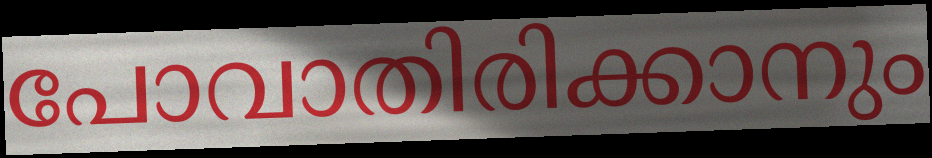
പോവാതിരിക്കാനും